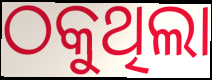
ଠକୁଥିଲା